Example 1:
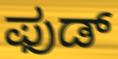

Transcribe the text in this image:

ಫುಡ್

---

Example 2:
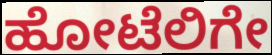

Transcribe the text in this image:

ಹೋಟೆಲಿಗೇ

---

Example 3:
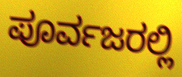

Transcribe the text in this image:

ಪೂರ್ವಜರಲ್ಲಿ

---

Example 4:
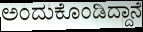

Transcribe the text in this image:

ಅಂದುಕೊಂಡಿದ್ದಾನೆ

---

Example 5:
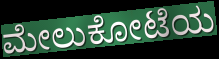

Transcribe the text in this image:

ಮೇಲುಕೋಟೆಯ